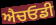
ਐਚਓਡੀ